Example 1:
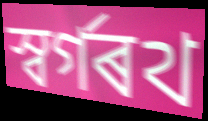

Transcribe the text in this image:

স্বৰ্গৰথ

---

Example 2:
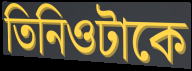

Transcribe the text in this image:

তিনিওটাকে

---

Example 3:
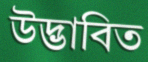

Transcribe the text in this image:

উদ্ভাবিত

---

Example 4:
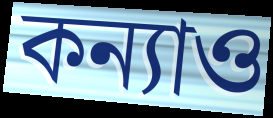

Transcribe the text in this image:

কন্যাও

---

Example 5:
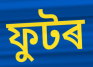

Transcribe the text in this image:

ফুটৰ